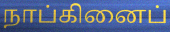
நாப்கினைப்